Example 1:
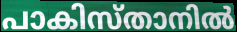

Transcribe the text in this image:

പാകിസ്താനിൽ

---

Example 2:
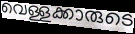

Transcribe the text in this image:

വെള്ളക്കാരുടെ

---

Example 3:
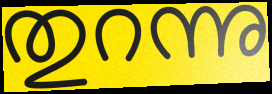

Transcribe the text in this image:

തുറന്നു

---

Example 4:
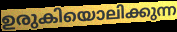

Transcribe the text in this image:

ഉരുകിയൊലിക്കുന്ന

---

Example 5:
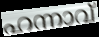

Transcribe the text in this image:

ഹന്നാവ്